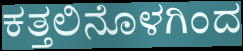
ಕತ್ತಲಿನೊಳಗಿಂದ